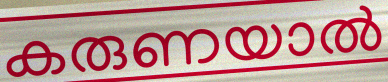
കരുണയാൽ